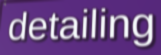
detailing